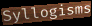
Syllogisms